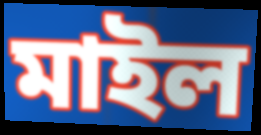
মাইল